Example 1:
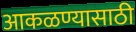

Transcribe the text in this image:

आकळण्यासाठी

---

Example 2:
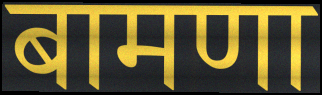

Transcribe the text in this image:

बामणा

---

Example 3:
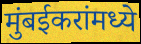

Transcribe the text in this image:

मुंबईकरांमध्ये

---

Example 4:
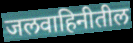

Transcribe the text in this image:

जलवाहिनीतील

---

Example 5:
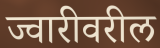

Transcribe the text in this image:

ज्वारीवरील